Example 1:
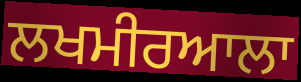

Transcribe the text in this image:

ਲਖਮੀਰਆਲਾ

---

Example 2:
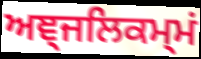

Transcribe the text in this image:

ਅਞ੍ਜਲਿਕਮ੍ਮਂ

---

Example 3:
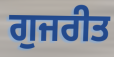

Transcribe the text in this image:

ਗੁਜਰੀਤ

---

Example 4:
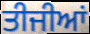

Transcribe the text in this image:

ਤੀਜੀਆਂ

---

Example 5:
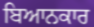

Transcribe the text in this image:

ਬਿਆਨਕਾਰ